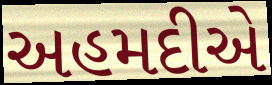
અહમદીએ